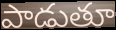
పాడుతూ